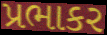
પ્રભાકર